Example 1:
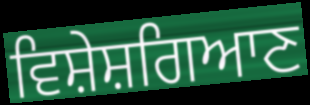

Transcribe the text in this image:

ਵਿਸ਼ੇਸ਼ਗਿਆਣ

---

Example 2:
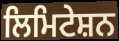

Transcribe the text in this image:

ਲਿਮਿਟੇਸ਼ਨ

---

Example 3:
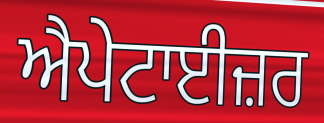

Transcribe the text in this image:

ਐਪੇਟਾਈਜ਼ਰ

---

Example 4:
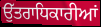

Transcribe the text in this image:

ਉੱਤਰਾਧਿਕਾਰੀਆਂ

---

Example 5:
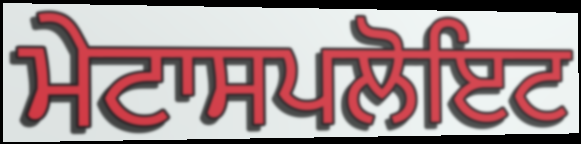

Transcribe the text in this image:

ਮੇਟਾਸਪਲੋਇਟ